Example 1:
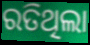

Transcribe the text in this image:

ରତିଥିଲା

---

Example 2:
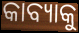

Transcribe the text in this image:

କାବ୍ୟାକୁ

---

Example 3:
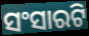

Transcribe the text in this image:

ସଂସାରଟି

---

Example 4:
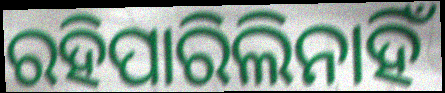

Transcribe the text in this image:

ରହିପାରିଲିନାହିଁ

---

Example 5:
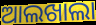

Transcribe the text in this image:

ଆଲଖାଲା